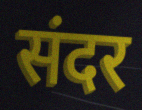
संदर